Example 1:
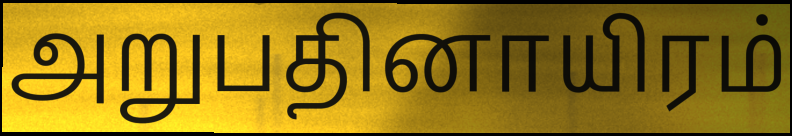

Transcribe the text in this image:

அறுபதினாயிரம்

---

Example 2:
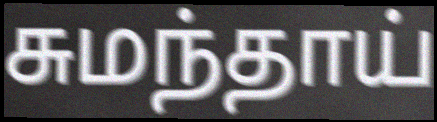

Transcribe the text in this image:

சுமந்தாய்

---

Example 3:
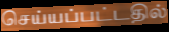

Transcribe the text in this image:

செய்யப்பட்டதில்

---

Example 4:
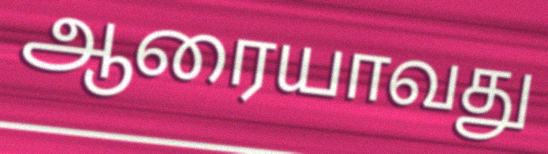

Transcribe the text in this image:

ஆரையாவது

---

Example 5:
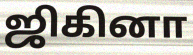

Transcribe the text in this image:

ஜிகினா